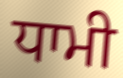
ਧਾਮੀ